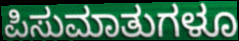
ಪಿಸುಮಾತುಗಳೂ